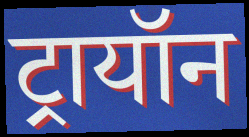
ट्रायॉन